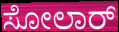
ಸೋಲಾರ್